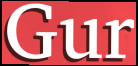
Gur